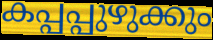
കപ്പപ്പുഴുക്കും